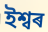
ইশ্বৰ